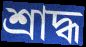
শ্ৰাদ্ধ